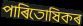
পাৰিতোষিকৰ